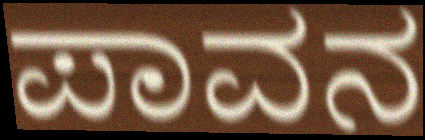
ಪಾವನ